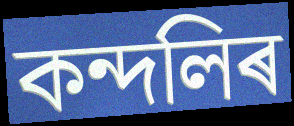
কন্দলিৰ